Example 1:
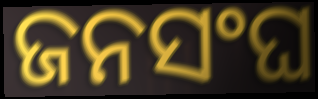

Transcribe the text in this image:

ଜନସଂଘ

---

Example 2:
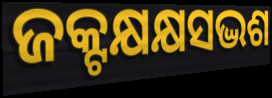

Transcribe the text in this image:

ଜକ୍ଟକ୍ଷକ୍ଷସଦ୍ଭଶ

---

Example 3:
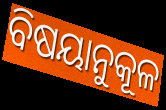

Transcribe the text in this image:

ବିଷୟାନୁକୂଳ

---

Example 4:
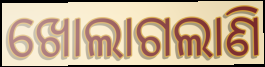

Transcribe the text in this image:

ଖୋଲାଗଲାଣି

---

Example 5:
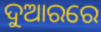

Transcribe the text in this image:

ଦୁଆରରେ